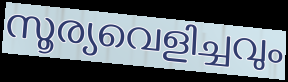
സൂര്യവെളിച്ചവും